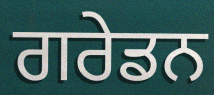
ਗਰੇਡਨ